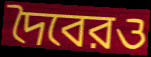
দৈবেরও